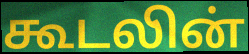
கூடலின்